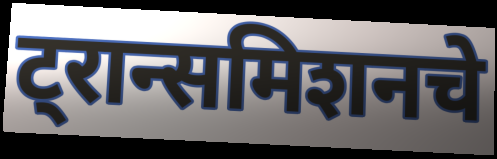
ट्रान्समिशनचे